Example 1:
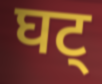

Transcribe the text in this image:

घट्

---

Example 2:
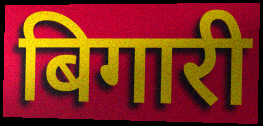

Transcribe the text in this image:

बिगारी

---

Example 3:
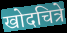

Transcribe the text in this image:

खोदचित्रे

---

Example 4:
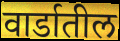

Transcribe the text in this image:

वार्डातील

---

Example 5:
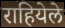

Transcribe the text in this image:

राहियेले